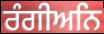
ਰੰਗੀਅਨਿ